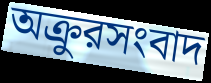
অক্রুরসংবাদ